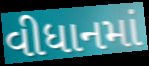
વીધાનમાં